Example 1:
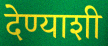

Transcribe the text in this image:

देण्याशी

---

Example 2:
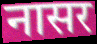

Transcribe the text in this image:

नासर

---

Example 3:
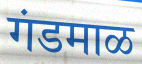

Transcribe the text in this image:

गंडमाळ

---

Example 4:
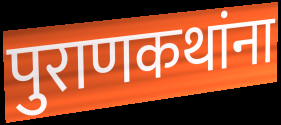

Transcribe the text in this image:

पुराणकथांना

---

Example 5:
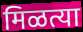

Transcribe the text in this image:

मिळत्या